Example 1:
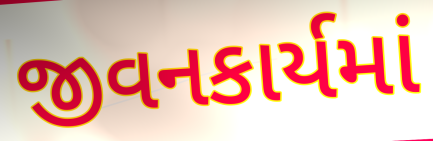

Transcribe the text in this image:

જીવનકાર્યમાં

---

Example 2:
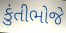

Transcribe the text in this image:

કુંતીભોજે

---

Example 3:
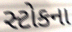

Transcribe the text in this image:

સ્ટોકના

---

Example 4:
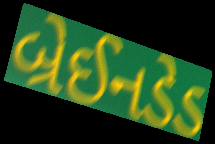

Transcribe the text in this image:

બ્રેઈનડેડ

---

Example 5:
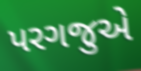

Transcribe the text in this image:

પરગજુએ